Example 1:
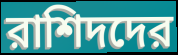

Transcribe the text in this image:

রাশিদদের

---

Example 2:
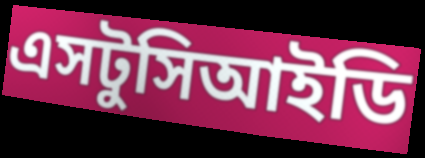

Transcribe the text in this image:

এসটুসিআইডি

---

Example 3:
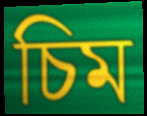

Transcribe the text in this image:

চিম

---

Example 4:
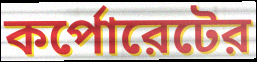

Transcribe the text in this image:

কর্পোরেটের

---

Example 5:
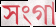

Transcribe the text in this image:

সংগা